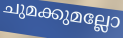
ചുമക്കുമല്ലോ